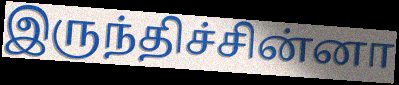
இருந்திச்சின்னா